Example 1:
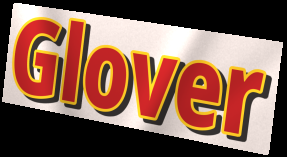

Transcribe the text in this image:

Glover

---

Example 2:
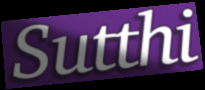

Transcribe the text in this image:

Sutthi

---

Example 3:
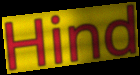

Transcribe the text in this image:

Hind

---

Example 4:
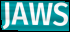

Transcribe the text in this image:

JAWS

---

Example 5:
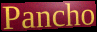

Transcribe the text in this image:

Pancho